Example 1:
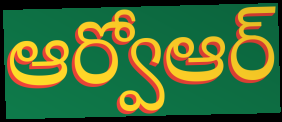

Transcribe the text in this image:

ఆర్వోఆర్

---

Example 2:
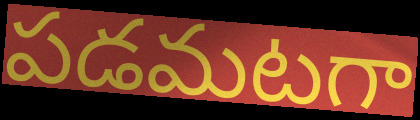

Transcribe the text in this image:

పడమటగా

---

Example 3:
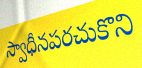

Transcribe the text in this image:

స్వాధీనపరచుకొని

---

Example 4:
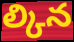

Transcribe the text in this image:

ల్కిన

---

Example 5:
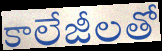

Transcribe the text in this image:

కాలేజీలతో